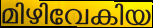
മിഴിവേകിയ